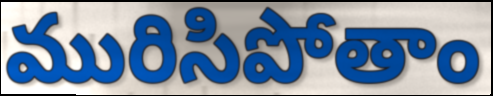
మురిసిపోతాం